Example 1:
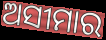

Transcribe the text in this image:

ଅସୀମାର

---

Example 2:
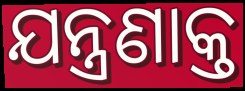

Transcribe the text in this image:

ଯନ୍ତ୍ରଣାକ୍ତ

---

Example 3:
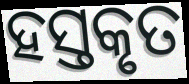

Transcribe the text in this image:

ହସ୍ତକୃତ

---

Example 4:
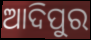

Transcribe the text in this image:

ଆଦିପୁର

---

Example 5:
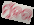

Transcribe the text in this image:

ମୁଁହର